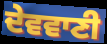
ਦੇਵਵਾਣੀ